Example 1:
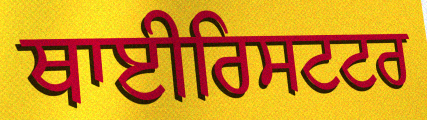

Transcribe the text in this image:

ਥਾਈਰਿਸਟਟਰ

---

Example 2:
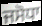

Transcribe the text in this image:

ਜਸੋਧਾ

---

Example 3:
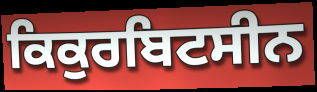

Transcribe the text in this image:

ਕਿਕੁਰਬਿਟਸੀਨ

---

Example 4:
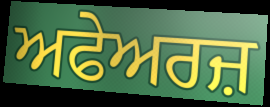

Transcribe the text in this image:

ਅਫੇਅਰਜ਼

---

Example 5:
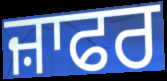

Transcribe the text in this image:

ਜ਼ਾਫਰ